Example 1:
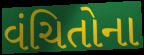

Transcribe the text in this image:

વંચિતોના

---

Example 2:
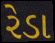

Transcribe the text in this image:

રેડા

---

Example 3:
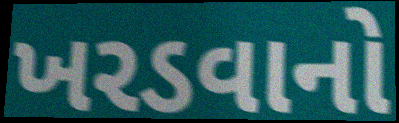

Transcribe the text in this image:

ખરડવાનો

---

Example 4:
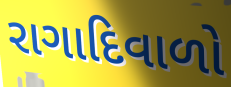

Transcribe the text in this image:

રાગાદિવાળો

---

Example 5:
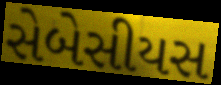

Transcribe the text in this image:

સેબેસીયસ